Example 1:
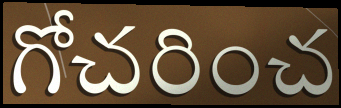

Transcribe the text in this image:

గోచరించ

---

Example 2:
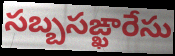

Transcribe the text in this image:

సబ్బసఙ్ఖారేసు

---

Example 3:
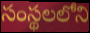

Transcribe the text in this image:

సంస్థలలోని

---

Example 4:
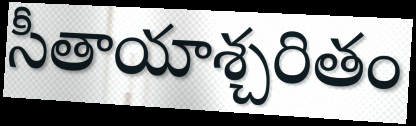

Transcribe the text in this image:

సీతాయాశ్చరితం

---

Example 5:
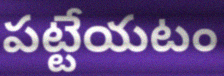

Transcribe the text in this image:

పట్టేయటం